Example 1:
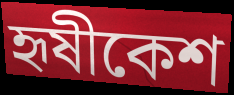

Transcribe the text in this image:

হৃষীকেশ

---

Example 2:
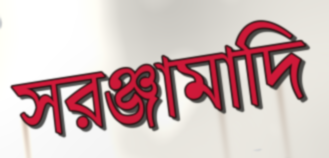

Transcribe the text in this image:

সরঞ্জামাদি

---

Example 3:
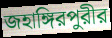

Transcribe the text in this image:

জহাঙ্গিরপুরীর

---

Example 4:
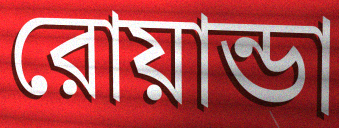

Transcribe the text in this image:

রোয়ান্ডা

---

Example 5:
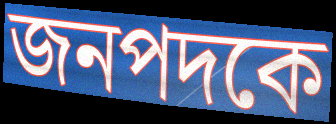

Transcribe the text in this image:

জনপদকে